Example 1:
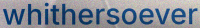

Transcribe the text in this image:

whithersoever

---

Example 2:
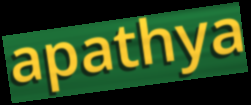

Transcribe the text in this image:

apathya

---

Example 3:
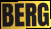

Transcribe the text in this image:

BERG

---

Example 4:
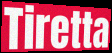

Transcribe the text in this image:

Tiretta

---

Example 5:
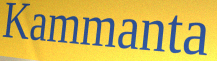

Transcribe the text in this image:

Kammanta